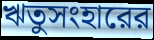
ঋতুসংহারের